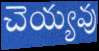
చెయ్యవు